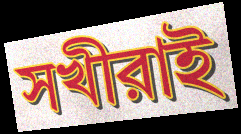
সখীরাই